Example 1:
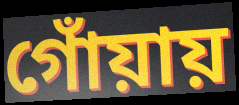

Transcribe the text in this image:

গোঁয়ায়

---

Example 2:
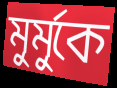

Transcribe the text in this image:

মুর্মুকে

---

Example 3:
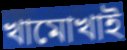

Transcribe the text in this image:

খামোখাই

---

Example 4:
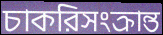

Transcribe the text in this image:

চাকরিসংক্রান্ত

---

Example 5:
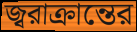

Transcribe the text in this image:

জ্বরাক্রান্তের